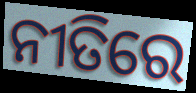
ନୀତିରେ